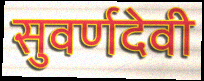
सुवर्णदेवी